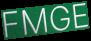
FMGE